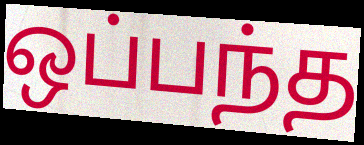
ஒப்பந்த